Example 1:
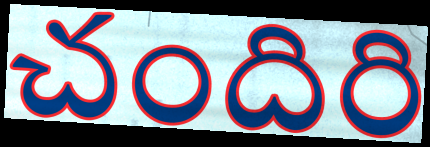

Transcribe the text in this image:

చందిరి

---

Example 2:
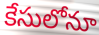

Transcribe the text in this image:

కేసులోనూ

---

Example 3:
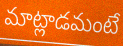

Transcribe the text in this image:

మాట్లాడమంటే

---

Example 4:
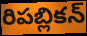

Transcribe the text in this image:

రిపబ్లికన్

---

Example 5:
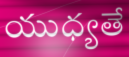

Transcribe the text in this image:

యుధ్యతే